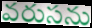
వరుసను